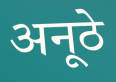
अनूठे